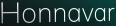
Honnavar